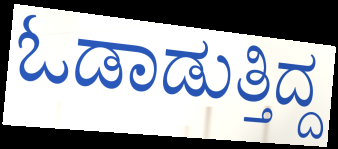
ಓಡಾಡುತ್ತಿದ್ದ